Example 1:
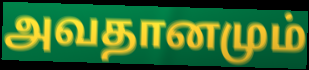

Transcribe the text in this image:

அவதானமும்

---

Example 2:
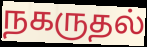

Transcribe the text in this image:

நகருதல்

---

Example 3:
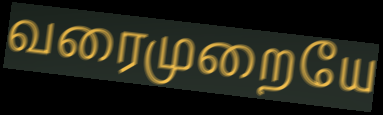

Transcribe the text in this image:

வரைமுறையே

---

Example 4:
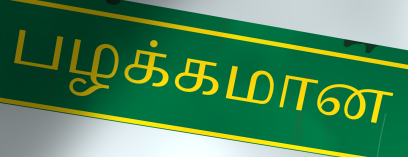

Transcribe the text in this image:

பழக்கமான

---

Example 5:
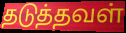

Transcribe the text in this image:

தடுத்தவள்